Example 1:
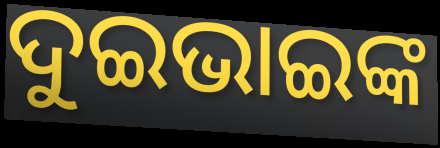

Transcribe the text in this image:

ଦୁଇଭାଇଙ୍କ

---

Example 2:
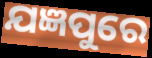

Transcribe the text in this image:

ଯଜ୍ଞପୁରେ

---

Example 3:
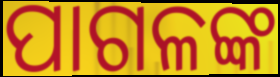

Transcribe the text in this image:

ପାଗଳଙ୍କ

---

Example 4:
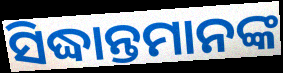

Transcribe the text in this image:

ସିଦ୍ଧାନ୍ତମାନଙ୍କ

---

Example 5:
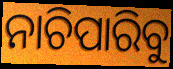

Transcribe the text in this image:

ନାଚିପାରିବୁ